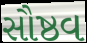
સૌષ્ઠવ